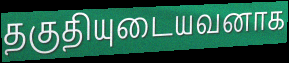
தகுதியுடையவனாக